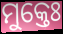
ମୁକ୍ତେଃ